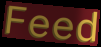
Feed